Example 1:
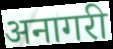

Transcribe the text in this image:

अनागरी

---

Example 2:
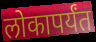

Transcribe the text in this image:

लोकापर्यंत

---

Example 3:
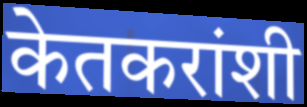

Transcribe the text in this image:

केतकरांशी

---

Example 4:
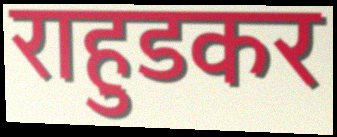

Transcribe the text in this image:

राहुडकर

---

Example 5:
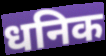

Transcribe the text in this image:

धनिक